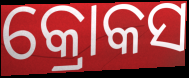
କ୍ରୋକସ